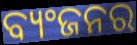
ବ୍ୟଂଜନର